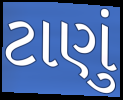
ટાણું